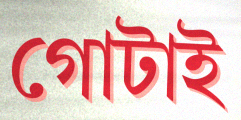
গোটাই